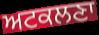
ਅਟਕਲਣਾ